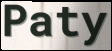
Paty